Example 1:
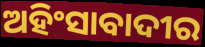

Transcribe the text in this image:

ଅହିଂସାବାଦୀର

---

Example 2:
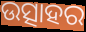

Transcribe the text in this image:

ଉତ୍ସାହର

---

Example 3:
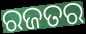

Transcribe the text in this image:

ରଜତର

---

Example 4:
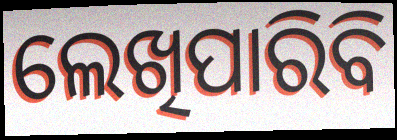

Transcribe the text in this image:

ଲେଖିପାରିବି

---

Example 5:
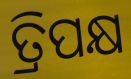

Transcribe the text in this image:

ତ୍ରିପକ୍ଷ